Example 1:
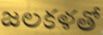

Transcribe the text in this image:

జలకళతో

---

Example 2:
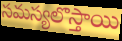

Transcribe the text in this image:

సమస్యలొస్తాయి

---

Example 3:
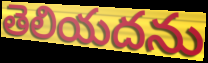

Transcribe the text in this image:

తెలియదను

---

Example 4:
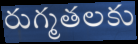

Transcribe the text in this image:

రుగ్మతలకు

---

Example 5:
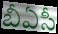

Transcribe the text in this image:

బీఏసీ